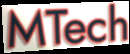
MTech